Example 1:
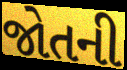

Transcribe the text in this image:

જોતની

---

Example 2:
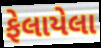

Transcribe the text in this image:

ફેલાયેલા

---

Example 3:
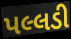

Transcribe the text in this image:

પલ્લડી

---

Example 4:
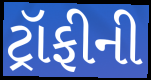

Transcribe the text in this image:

ટ્રૉફીની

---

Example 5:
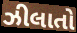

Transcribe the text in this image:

ઝીલાતો